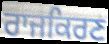
ਰਾਜਕਿਰਣ